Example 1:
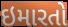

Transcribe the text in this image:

ઇમારતો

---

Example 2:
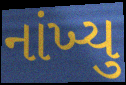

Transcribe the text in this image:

નાંખ્યુ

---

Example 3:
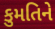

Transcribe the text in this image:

કુમતિને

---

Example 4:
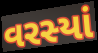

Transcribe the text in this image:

વરસ્યાં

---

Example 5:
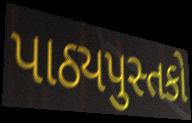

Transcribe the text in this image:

પાઠ્યપુસ્તકો